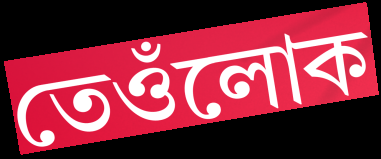
তেওঁলোক